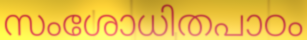
സംശോധിതപാഠം